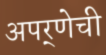
अपर्णेची